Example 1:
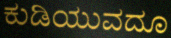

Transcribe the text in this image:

ಕುಡಿಯುವದೂ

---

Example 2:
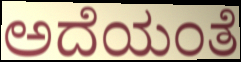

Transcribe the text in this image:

ಅದೆಯಂತೆ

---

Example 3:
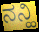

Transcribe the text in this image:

ನನ್ಹಿ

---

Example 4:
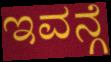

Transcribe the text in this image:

ಇವನ್ಗೆ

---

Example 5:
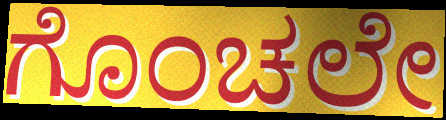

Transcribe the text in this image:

ಗೊಂಚಲೇ